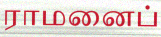
ராமனைப்